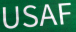
USAF